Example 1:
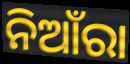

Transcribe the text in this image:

ନିଆଁରା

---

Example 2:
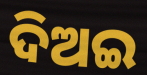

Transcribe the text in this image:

ଦିଅଇ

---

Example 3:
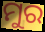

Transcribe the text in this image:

ମୁର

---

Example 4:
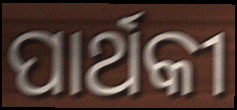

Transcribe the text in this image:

ପାର୍ଥକୀ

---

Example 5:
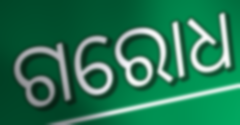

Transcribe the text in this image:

ଗରୋଧ